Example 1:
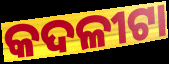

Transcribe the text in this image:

କଦଳୀଟା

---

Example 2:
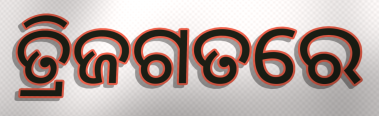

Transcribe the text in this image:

ତ୍ରିଜଗତରେ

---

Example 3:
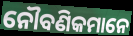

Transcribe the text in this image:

ନୌବଣିକମାନେ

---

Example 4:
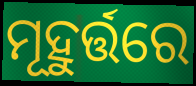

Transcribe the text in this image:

ମୂହୁର୍ତ୍ତରେ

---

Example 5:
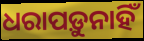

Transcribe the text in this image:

ଧରାପଡ଼ୁନାହିଁ